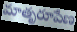
మాతృరూపేణ